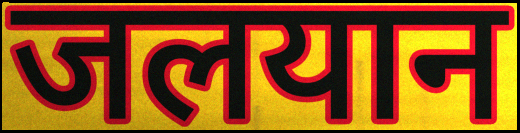
जलयान